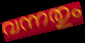
വന്നതും